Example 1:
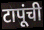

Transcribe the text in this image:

टापूंची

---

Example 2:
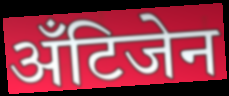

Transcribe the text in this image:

अँटिजेन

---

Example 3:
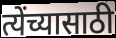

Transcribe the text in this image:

त्येंच्यासाठी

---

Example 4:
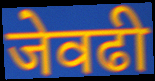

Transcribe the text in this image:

जेवढी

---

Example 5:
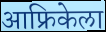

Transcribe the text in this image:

आफ्रिकेला